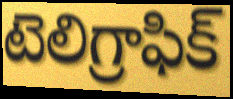
టెలిగ్రాఫిక్